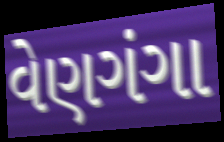
વેણગંગા